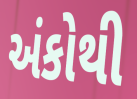
અંકોથી